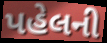
પહેલની